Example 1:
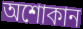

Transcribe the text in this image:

অশোকান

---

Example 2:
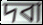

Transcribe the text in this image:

দবা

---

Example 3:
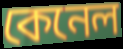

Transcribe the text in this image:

কেনেল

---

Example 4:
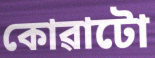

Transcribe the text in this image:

কোৱাটো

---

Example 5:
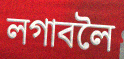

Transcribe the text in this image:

লগাবলৈ